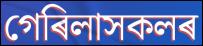
গেৰিলাসকলৰ